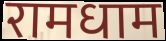
रामधाम